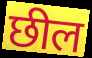
छील